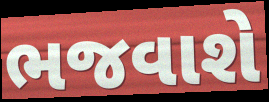
ભજવાશે